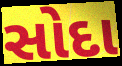
સોદા